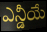
ఎన్డీయే